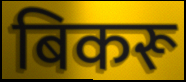
बिकरू